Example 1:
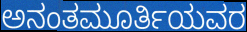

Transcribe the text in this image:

ಅನಂತಮೂರ್ತಿಯವರ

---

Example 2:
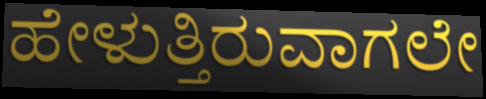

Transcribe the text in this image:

ಹೇಳುತ್ತಿರುವಾಗಲೇ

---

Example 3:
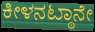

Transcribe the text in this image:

ಕೀಳನಟ್ಠಾನೇ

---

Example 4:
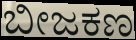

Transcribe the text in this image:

ಬೀಜಕಣ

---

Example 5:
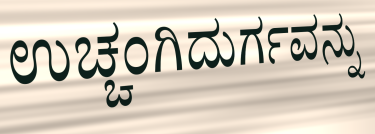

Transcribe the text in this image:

ಉಚ್ಚಂಗಿದುರ್ಗವನ್ನು